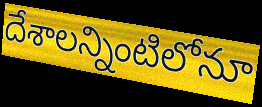
దేశాలన్నింటిలోనూ